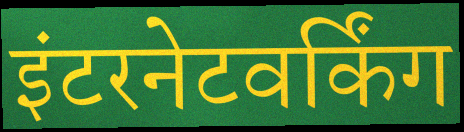
इंटरनेटवर्किंग